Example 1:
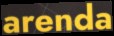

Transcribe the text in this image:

arenda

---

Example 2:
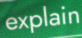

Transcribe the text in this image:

explain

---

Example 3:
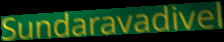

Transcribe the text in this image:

Sundaravadivel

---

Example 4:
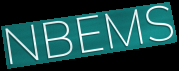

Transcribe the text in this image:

NBEMS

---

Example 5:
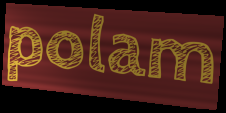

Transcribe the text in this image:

polam